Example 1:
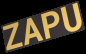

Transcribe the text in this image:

ZAPU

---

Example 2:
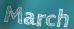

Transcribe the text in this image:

March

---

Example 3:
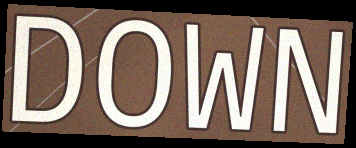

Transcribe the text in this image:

DOWN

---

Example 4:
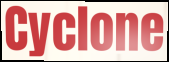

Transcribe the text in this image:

Cyclone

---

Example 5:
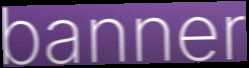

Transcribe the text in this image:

banner